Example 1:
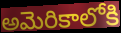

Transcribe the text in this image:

అమెరికాలోకి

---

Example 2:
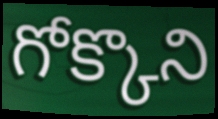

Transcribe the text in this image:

గోక్కొని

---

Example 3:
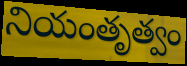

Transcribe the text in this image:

నియంతృత్వం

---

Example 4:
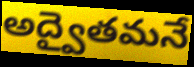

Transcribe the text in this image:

అద్వైతమనే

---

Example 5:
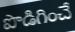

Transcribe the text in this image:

పొడిగించే